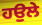
ਹਉਲੇ